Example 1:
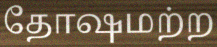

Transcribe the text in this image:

தோஷமற்ற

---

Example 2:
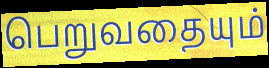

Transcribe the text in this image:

பெறுவதையும்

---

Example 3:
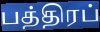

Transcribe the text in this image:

பத்திரப்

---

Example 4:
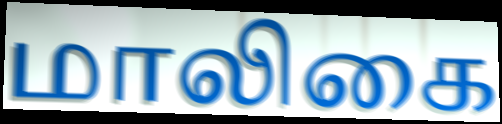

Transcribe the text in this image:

மாலிகை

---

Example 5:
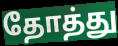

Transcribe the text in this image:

தோத்து